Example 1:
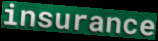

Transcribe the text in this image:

insurance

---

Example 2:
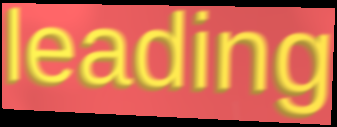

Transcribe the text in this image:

leading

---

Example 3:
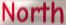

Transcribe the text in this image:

North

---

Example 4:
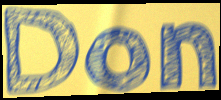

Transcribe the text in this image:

Don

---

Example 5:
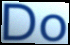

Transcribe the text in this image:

Do